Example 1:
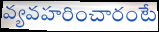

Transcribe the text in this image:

వ్యవహరించారంటే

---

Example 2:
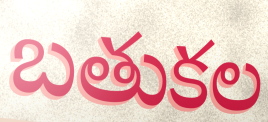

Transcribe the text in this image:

బతుకల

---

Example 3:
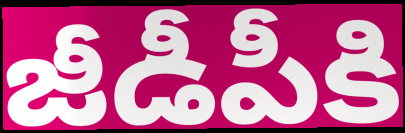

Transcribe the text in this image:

జీడీపీకి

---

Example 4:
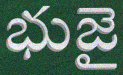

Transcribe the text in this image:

భుజై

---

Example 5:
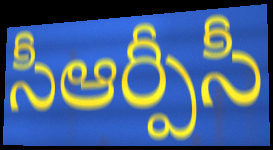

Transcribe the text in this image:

సీఆర్పీసీ